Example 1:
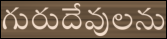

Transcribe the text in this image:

గురుదేవులను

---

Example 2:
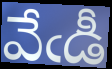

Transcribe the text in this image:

వేఁడీ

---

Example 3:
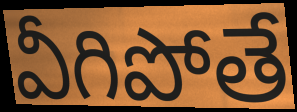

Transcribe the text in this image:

వీగిపోతే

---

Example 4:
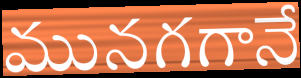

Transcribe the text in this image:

మునగగానే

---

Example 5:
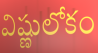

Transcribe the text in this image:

విష్ణులోకం